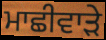
ਮਾਛੀਵਾੜੇ